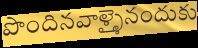
పొందినవాళ్ళైనందుకు